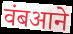
वंबआने